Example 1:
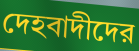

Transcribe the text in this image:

দেহবাদীদের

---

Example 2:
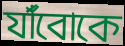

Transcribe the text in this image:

র্যাঁবোকে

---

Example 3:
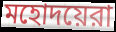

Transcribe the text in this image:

মহোদয়েরা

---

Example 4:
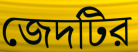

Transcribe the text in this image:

জেদটির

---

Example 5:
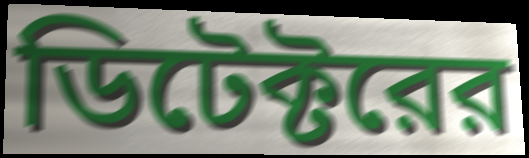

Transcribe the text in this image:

ডিটেক্টরের